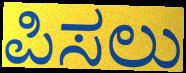
ಪಿಸಲು